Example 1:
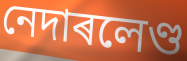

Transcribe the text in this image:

নেদাৰলেণ্ড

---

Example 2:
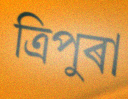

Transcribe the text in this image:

ত্ৰিপুৰা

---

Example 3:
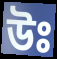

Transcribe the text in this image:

উঃ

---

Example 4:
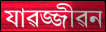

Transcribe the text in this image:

যাৱজ্জীৱন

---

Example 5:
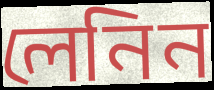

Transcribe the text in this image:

লেনিন